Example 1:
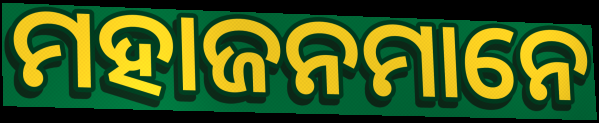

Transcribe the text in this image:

ମହାଜନମାନେ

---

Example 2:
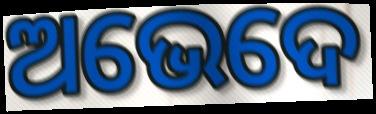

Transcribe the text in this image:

ଅଭେଦେ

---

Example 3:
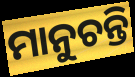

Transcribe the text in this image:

ମାନୁଚନ୍ତି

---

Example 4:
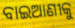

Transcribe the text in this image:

ବାଇଆଣୀକୁ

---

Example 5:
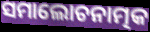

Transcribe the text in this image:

ସମାଲୋଚନାତ୍ମକ